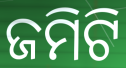
ଜମିଟି